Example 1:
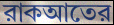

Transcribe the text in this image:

রাকআতের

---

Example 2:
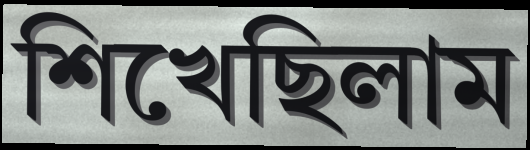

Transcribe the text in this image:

শিখেছিলাম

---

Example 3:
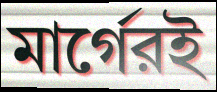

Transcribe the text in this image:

মার্গেরই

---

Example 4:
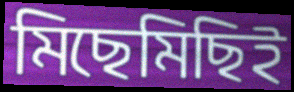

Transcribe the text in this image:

মিছেমিছিই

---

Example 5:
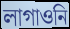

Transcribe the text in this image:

লাগাওনি